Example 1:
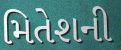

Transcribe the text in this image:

મિતેશની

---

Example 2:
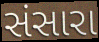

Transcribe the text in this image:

સંસારા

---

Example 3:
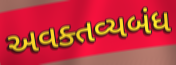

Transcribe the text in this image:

અવક્તવ્યબંધ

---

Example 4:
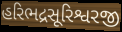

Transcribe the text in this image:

હરિભદ્રસૂરિશ્વરજી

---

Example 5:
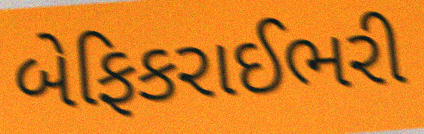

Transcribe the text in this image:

બેફિકરાઈભરી